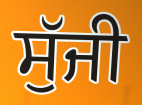
ਸੁੱਜੀ